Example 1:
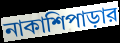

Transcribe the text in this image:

নাকাশিপাড়ার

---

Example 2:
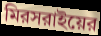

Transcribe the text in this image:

মিরসরাইয়ের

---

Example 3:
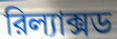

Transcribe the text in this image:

রিল্যাক্সড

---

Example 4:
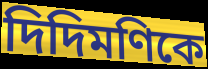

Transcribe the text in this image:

দিদিমণিকে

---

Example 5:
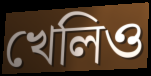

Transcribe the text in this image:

খেলিও